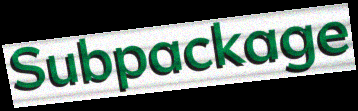
Subpackage